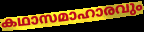
കഥാസമാഹാരവും